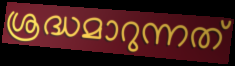
ശ്രദ്ധമാറുന്നത്